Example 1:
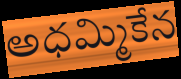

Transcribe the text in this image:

అధమ్మికేన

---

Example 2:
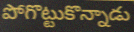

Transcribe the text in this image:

పోగొట్టుకొన్నాడు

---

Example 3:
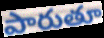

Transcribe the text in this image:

పారుతూ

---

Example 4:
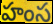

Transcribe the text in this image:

హంస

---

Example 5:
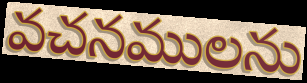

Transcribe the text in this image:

వచనములను